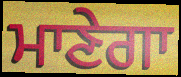
ਮਾਣੇਗਾ